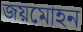
জয়মোহন